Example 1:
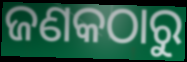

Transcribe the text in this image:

ଜଣକଠାରୁ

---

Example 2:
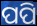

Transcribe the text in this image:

ପପି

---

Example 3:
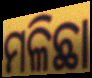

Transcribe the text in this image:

ମଳିଛା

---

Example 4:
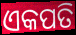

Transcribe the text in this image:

ଏକପତି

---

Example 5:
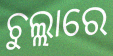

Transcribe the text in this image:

ଚୁଲ୍ଲାରେ